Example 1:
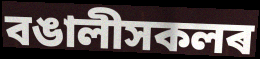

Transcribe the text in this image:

বঙালীসকলৰ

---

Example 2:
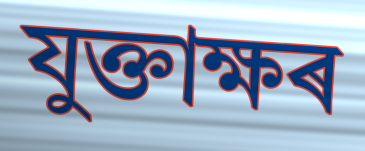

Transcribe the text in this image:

যুক্তাক্ষৰ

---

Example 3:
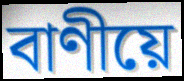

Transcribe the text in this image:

বাণীয়ে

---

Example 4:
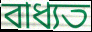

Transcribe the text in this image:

বাধ্যত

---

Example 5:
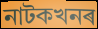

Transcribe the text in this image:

নাটকখনৰ